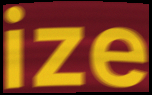
ize